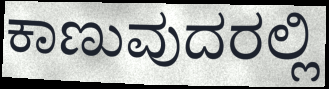
ಕಾಣುವುದರಲ್ಲಿ